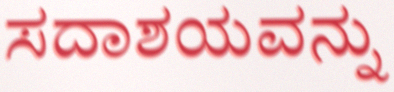
ಸದಾಶಯವನ್ನು